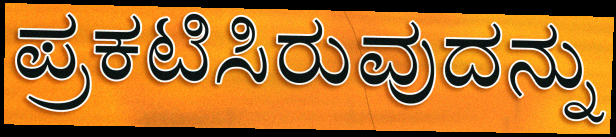
ಪ್ರಕಟಿಸಿರುವುದನ್ನು